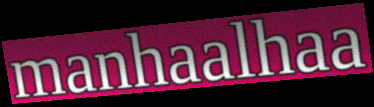
manhaalhaa